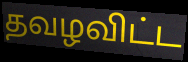
தவழவிட்ட